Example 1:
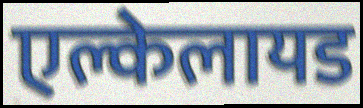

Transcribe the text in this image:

एल्केलायड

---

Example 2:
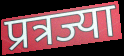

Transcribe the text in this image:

प्रत्रज्या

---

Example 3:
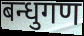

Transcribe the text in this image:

बन्धुगण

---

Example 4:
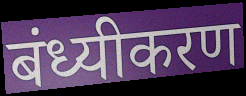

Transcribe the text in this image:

बंध्यीकरण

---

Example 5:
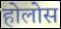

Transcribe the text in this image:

होलोस